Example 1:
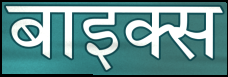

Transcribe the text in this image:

बाइक्स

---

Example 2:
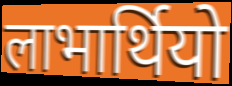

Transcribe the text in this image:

लाभार्थियो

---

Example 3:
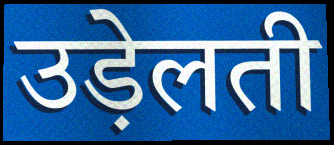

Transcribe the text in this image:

उड़ेलती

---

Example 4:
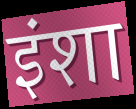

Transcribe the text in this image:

इंशा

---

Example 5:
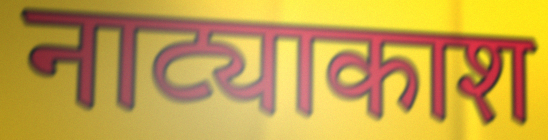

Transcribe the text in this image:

नाट्याकाश